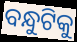
ବନ୍ଧୁଟିକୁ